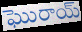
ఘొరాయ్